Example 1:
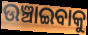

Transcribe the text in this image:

ଉଞ୍ଚାଇବାକୁ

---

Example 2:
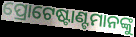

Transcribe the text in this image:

ପ୍ରୋଟେଷ୍ଟାଣ୍ଟମାନଙ୍କୁ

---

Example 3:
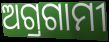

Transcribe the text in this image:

ଅଗ୍ରଗାମୀ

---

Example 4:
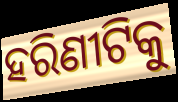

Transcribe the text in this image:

ହରିଣୀଟିକୁ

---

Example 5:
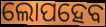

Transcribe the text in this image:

ଲୋପହେବ